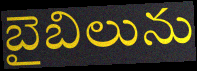
బైబిలును